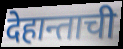
देहान्ताची